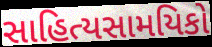
સાહિત્યસામયિકો